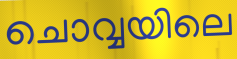
ചൊവ്വയിലെ